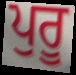
ਪੁਰੂ